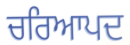
ਚਰਿਆਪਦ